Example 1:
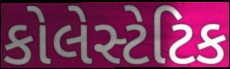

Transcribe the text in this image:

કોલેસ્ટેટિક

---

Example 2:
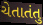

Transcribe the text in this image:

ચેતાતંતુ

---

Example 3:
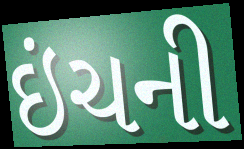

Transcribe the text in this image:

ઇંચની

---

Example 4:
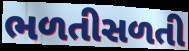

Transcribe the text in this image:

ભળતીસળતી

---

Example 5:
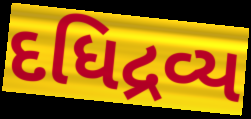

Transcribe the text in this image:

દધિદ્રવ્ય